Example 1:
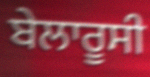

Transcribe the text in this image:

ਬੇਲਾਰੂਸੀ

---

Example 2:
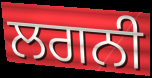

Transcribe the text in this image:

ਲਗਨੀ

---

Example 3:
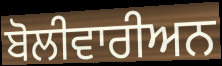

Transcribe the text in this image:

ਬੋਲੀਵਾਰੀਅਨ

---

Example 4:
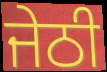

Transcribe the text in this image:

ਜੇਠੀ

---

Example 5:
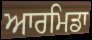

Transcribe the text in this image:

ਆਰਮਿਡਾ